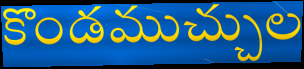
కొండముచ్చుల